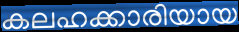
കലഹക്കാരിയായ